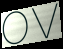
ov